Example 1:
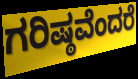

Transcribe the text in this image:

ಗರಿಷ್ಠವೆಂದರೆ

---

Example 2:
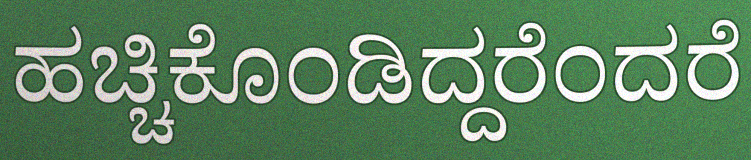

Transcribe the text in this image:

ಹಚ್ಚಿಕೊಂಡಿದ್ದರೆಂದರೆ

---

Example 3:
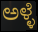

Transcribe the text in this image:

ಅಳ್ಳೆ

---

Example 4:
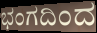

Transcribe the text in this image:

ಭಂಗದಿಂದ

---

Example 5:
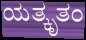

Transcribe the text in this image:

ಯತ್ಕೃತಂ